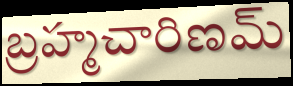
బ్రహ్మచారిణమ్